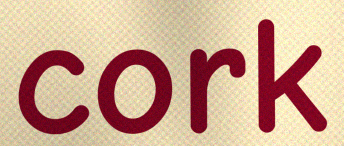
cork